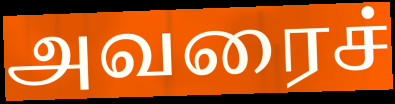
அவரைச்